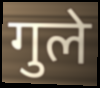
गुले